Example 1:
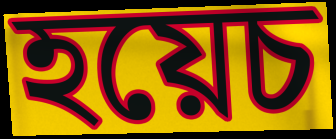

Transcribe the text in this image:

হয়েচ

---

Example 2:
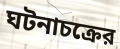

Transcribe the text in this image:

ঘটনাচক্রের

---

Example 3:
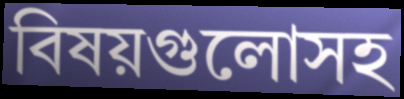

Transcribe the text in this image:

বিষয়গুলোসহ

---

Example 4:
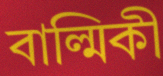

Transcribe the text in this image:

বাল্মিকী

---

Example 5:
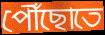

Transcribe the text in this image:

পৌঁছোতে